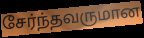
சேர்ந்தவருமான